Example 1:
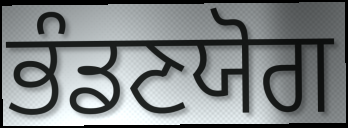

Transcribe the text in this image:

ਭੰਡਣਯੋਗ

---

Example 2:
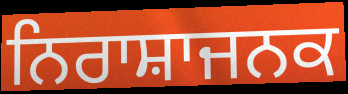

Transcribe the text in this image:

ਨਿਰਾਸ਼ਾਜਨਕ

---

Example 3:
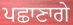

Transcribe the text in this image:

ਪਛਾਣਾਗੇ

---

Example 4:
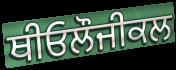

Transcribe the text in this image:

ਥੀਓਲੌਜੀਕਲ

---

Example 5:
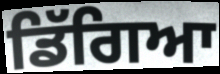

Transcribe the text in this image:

ਡਿੱਗਿਆ